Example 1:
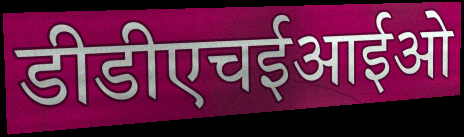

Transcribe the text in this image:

डीडीएचईआईओ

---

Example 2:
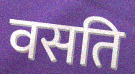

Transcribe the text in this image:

वसति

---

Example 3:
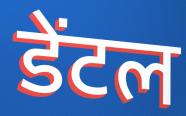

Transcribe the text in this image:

डेंटल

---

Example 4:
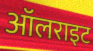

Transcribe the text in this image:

ऑलराइट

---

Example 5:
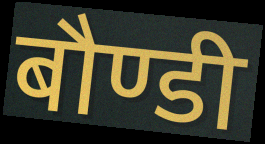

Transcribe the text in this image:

बौण्डी